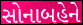
સોનાબહેને